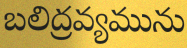
బలిద్రవ్యమును